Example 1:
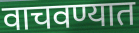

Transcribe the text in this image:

वाचवण्यात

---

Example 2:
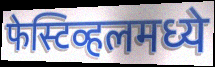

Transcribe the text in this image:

फेस्टिव्हलमध्ये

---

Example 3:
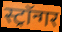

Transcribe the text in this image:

स्ट्रॉन्गर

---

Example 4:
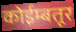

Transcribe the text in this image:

कोईम्बतूर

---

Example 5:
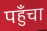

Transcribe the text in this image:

पहुँचा